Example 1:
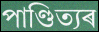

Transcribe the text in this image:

পাণ্ডিত্যৰ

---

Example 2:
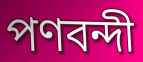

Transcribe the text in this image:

পণবন্দী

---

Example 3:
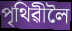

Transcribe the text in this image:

পৃথিৱীলৈ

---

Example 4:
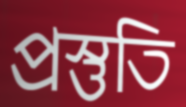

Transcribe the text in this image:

প্ৰস্তুতি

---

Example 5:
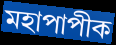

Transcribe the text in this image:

মহাপাপীক